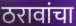
ठरावांचा